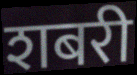
शबरी